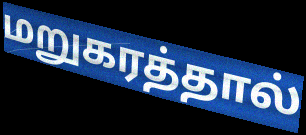
மறுகரத்தால்